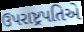
ઉપરાષ્ટ્રપતિએ